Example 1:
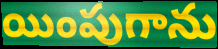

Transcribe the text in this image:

యింపుగాను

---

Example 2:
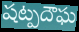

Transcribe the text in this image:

షట్పదౌఘ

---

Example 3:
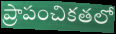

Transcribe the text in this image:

ప్రాపంచికతలో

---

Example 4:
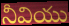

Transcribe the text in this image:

నీవియు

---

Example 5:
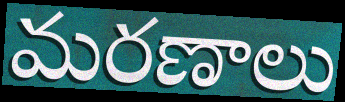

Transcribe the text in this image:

మరణాలు